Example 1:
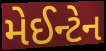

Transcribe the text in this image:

મેઈન્ટેન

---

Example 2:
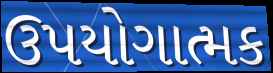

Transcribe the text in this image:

ઉપયોગાત્મક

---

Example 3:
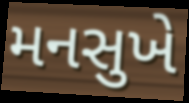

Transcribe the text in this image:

મનસુખે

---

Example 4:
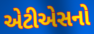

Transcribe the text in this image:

એટીએસનો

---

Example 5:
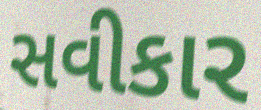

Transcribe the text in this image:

સવીકાર